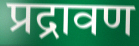
प्रद्रावण